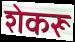
शेकरू